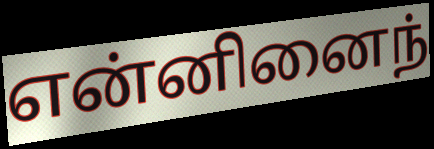
என்னினைந்